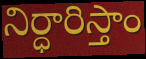
నిర్ధారిస్తాం